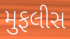
મુફલીસ